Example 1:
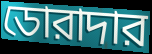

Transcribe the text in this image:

ডোরাদার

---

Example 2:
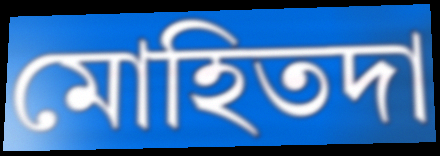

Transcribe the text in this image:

মোহিতদা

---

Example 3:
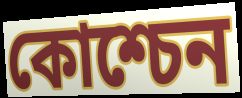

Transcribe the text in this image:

কোশ্চেন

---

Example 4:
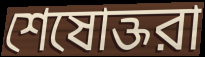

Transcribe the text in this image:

শেষোক্তরা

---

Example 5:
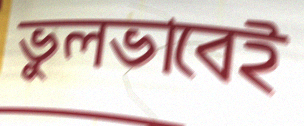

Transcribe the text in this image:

ভুলভাবেই